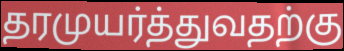
தரமுயர்த்துவதற்கு